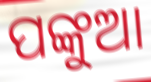
ପଙ୍କୁଆ